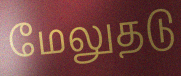
மேலுதடு